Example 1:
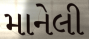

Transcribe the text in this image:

માનેલી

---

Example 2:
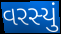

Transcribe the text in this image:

વરસ્યું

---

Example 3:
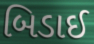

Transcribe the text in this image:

બિડાઈ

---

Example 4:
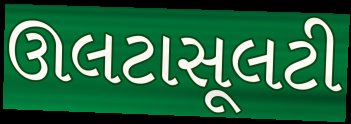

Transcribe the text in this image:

ઊલટાસૂલટી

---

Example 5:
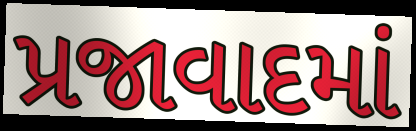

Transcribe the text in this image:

પ્રજાવાદમાં